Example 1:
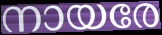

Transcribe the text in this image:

നായരേ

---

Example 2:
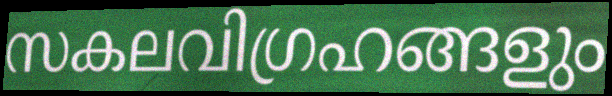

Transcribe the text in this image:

സകലവിഗ്രഹങ്ങളും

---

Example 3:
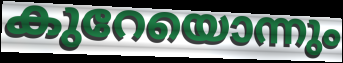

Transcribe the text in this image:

കുറേയൊന്നും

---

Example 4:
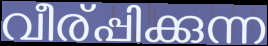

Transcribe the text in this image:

വീര്പ്പിക്കുന്ന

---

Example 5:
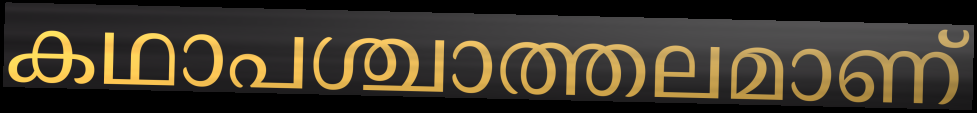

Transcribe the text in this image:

കഥാപശ്ചാത്തലമാണ്